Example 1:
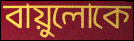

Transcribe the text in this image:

বায়ুলোকে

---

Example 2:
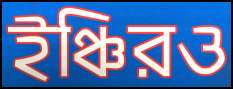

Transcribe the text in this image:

ইঞ্চিরও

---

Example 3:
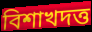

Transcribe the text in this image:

বিশাখদত্ত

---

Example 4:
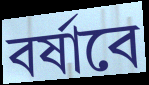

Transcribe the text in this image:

বর্ষাবে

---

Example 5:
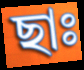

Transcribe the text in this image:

ছাঃ